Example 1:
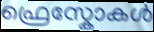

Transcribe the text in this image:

ഫ്രെസ്കോകൾ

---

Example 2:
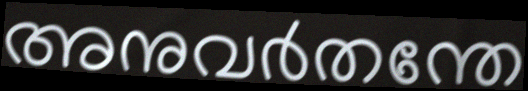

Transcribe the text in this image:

അനുവർതന്തേ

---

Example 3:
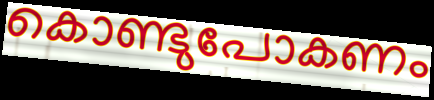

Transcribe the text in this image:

കൊണ്ടുപോകണം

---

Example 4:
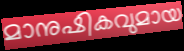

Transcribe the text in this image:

മാനുഷികവുമായ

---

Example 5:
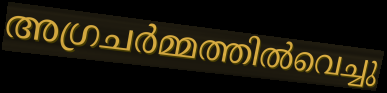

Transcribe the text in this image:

അഗ്രചർമ്മത്തിൽവെച്ചു